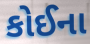
કોઈના